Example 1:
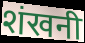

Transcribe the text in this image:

शंखनी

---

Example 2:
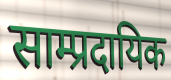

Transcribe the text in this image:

साम्प्रदायिक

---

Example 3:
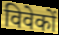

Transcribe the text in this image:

विवेकों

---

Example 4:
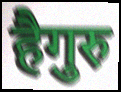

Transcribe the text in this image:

हैगुरु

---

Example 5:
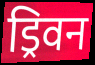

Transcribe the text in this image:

ड्रिवन